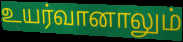
உயர்வானாலும்